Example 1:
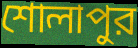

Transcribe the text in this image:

শোলাপুর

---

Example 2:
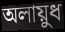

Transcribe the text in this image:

অলায়ুধ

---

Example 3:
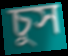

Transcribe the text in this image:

চুস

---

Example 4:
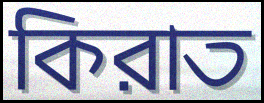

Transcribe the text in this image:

কিরাত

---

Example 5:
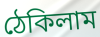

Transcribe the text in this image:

ঠেকিলাম